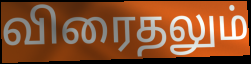
விரைதலும்